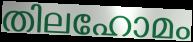
തിലഹോമം